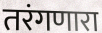
तरंगणारा